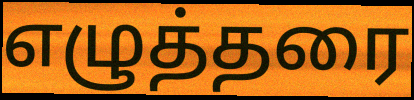
எழுத்தரை